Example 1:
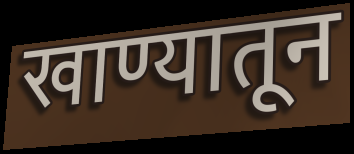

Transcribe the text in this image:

खाण्यातून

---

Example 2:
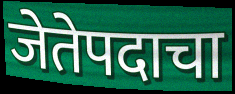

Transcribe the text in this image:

जेतेपदाचा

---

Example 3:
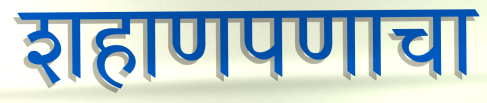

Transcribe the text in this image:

शहाणपणाचा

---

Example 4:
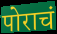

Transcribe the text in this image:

पोराचं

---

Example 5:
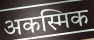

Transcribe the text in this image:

अकस्मिक